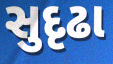
સુદૃઢા